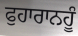
ਫੁਹਾਰਾਨਹੂੰ